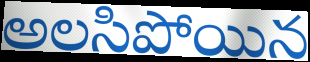
అలసిపోయిన